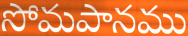
సోమపానము